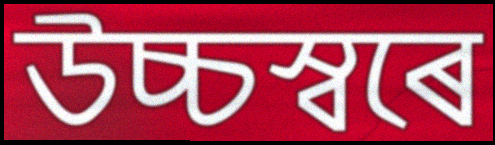
উচ্চস্বৰে